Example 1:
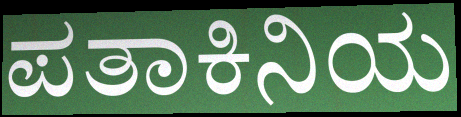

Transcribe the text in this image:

ಪತಾಕಿನಿಯ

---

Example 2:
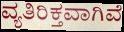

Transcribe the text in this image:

ವ್ಯತಿರಿಕ್ತವಾಗಿವೆ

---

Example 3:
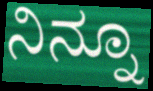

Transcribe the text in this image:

ನಿನ್ನೂ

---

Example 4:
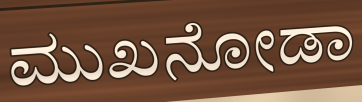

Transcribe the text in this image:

ಮುಖನೋಡಾ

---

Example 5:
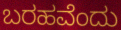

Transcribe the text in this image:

ಬರಹವೆಂದು